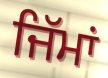
ਜਿੱਮਾਂ